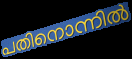
പതിനൊന്നിൽ